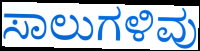
ಸಾಲುಗಳಿವು